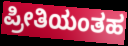
ಪ್ರೀತಿಯಂತಹ